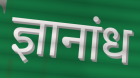
ज्ञानांध